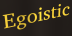
Egoistic